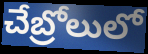
చేబ్రోలులో